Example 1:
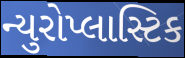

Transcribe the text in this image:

ન્યુરોપ્લાસ્ટિક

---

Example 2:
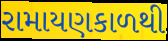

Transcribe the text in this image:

રામાયણકાળથી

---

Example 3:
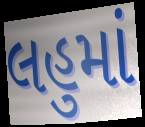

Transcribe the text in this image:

લહુમાં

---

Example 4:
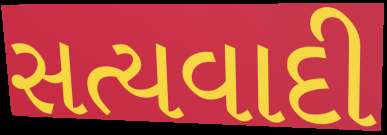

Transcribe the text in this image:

સત્યવાદી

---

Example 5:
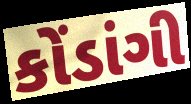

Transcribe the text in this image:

કોંડાંગી